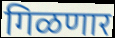
गिळणार